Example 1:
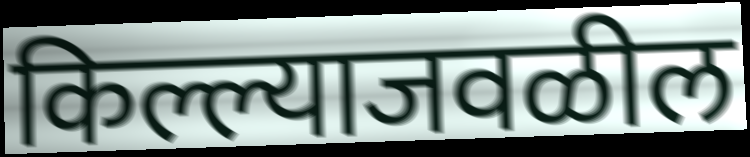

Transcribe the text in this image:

किल्ल्याजवळील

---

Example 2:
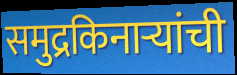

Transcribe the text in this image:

समुद्रकिनाऱ्यांची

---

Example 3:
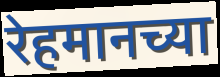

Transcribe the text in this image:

रेहमानच्या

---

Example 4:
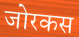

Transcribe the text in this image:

जोरकस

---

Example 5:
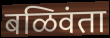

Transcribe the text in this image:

बळिवंता